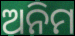
ଅନିମ